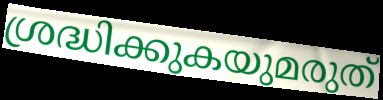
ശ്രദ്ധിക്കുകയുമരുത്